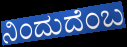
ನಿಂದುದೆಂಬ